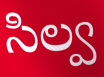
సిల్వ